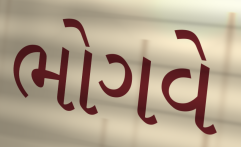
ભોગવે